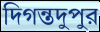
দিগন্তদুপুর